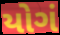
યોગં